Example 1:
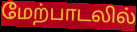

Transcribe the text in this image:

மேற்பாடலில்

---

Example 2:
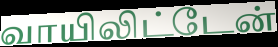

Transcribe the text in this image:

வாயிலிட்டேன்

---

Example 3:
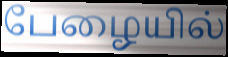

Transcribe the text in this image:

பேழையில்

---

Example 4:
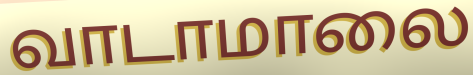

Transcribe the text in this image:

வாடாமாலை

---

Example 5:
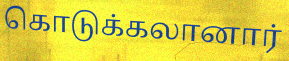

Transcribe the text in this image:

கொடுக்கலானார்